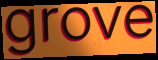
grove